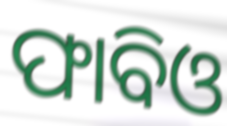
ଫାବିଓ